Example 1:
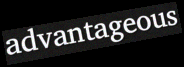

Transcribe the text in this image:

advantageous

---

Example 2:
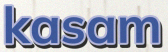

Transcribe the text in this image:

kasam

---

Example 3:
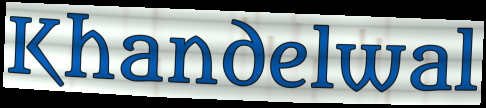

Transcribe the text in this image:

Khandelwal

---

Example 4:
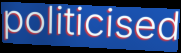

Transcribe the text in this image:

politicised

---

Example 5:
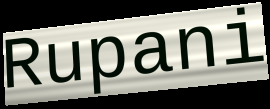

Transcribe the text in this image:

Rupani